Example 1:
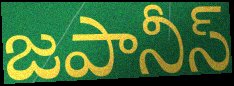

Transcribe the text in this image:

జపానీస్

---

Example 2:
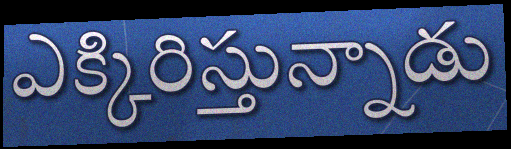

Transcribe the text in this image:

ఎక్కిరిస్తున్నాడు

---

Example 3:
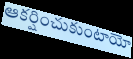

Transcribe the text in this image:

ఆకర్షించుకుంటాయో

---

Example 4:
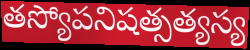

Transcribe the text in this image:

తస్యోపనిషత్సత్యస్య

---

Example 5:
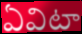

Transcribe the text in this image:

ఏవిటా